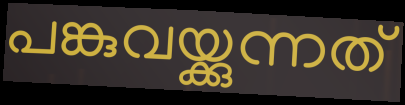
പങ്കുവയ്ക്കുന്നത്